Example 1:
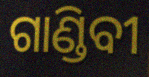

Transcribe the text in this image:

ଗାଣ୍ଡିବୀ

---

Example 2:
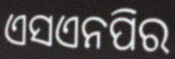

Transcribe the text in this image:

ଏସଏନପିର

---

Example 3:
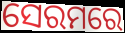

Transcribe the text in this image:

ସେରମରେ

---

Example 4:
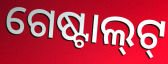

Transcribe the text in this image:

ଗେଷ୍ଟାଲ୍‌ଟ୍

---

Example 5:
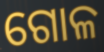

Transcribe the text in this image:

ଗୋଳ